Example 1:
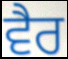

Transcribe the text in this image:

ਵੈਰ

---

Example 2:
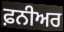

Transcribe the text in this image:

ਫ਼ਨੀਅਰ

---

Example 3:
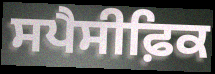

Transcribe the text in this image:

ਸਪੈਸੀਫ਼ਿਕ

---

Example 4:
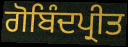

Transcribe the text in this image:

ਗੋਬਿੰਦਪ੍ਰੀਤ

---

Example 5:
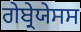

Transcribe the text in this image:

ਗੇਬ੍ਰੇਯੇਸਸ